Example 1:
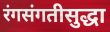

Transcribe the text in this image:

रंगसंगतीसुद्धा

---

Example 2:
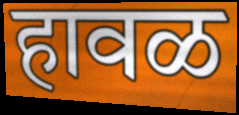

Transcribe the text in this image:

हावळ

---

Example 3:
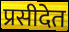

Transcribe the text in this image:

प्रसीदेत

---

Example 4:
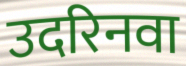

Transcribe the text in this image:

उदरिनवा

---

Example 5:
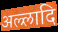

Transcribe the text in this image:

अल्लादि